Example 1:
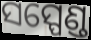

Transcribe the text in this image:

ସସ୍ପେଣ୍ଡ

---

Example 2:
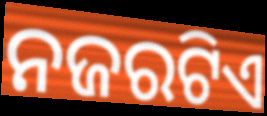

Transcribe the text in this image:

ନଜରଟିଏ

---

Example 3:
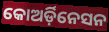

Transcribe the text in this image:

କୋଅର୍ଡ଼ିନେସନ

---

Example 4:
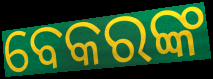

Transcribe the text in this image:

ବେକରଙ୍କ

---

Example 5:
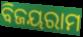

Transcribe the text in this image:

ବିଜୟରାମ